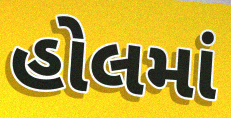
હોલમાં